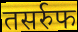
तसर्रुफ